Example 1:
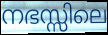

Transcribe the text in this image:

നഭസ്സിലെ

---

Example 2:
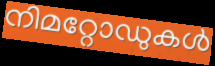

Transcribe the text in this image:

നിമറ്റോഡുകൾ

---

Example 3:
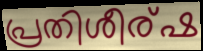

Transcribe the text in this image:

പ്രതിശീര്ഷ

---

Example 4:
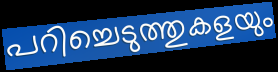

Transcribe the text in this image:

പറിച്ചെടുത്തുകളയും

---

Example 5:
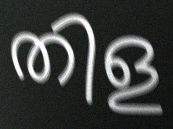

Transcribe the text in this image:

തിള